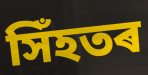
সিঁহতৰ